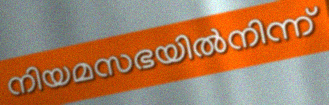
നിയമസഭയിൽനിന്ന്